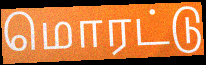
மொரட்டு